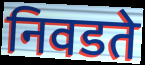
निवडते